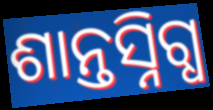
ଶାନ୍ତସ୍ନିଗ୍ଧ